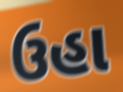
ઉહા